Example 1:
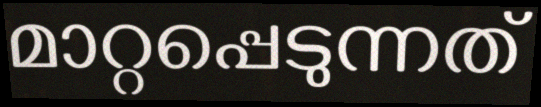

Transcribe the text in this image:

മാറ്റപ്പെടുന്നത്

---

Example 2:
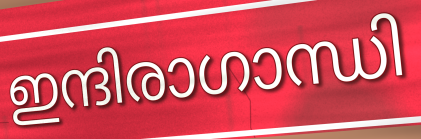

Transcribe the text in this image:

ഇന്ദിരാഗാന്ധി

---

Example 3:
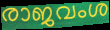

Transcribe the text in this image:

രാജവംശ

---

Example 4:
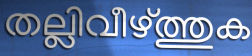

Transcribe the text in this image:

തല്ലിവീഴ്ത്തുക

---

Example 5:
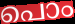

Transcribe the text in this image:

പൊം